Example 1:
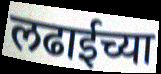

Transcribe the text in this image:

लढाईच्या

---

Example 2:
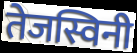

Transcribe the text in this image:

तेजस्विनी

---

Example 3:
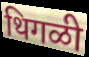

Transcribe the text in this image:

थिगळी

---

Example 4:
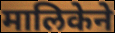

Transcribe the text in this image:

मालिकेने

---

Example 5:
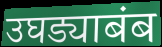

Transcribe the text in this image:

उघड्याबंब